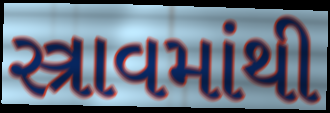
સ્ત્રાવમાંથી